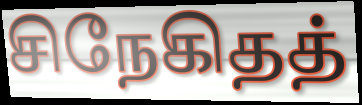
சிநேகிதத்